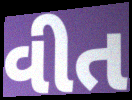
વીત